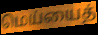
மெய்யைத்